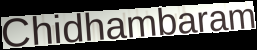
Chidhambaram